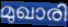
മുഖാരി